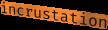
incrustation